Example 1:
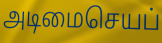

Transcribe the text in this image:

அடிமைசெயப்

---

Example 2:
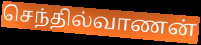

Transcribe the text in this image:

செந்தில்வாணன்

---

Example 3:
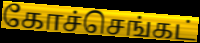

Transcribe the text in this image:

கோச்செங்கட்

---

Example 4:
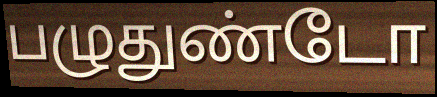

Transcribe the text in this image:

பழுதுண்டோ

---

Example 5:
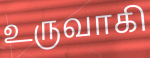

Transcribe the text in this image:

உருவாகி